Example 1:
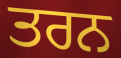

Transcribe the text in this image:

ਤਰਨ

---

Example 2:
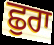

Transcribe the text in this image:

ਛੁਰਾ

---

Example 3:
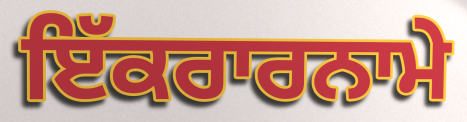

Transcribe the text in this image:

ਇੱਕਰਾਰਨਾਮੇ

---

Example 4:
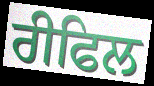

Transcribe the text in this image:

ਰੀਫਿਲ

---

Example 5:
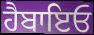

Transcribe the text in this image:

ਹੈਬਾਇਓ